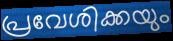
പ്രവേശിക്കയും